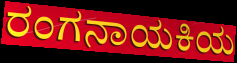
ರಂಗನಾಯಕಿಯ